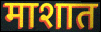
माशात